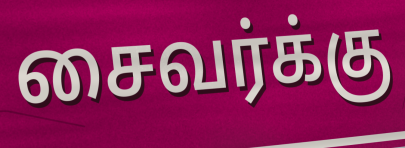
சைவர்க்கு